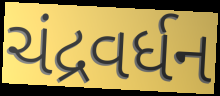
ચંદ્રવર્ધન